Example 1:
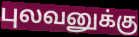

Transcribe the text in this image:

புலவனுக்கு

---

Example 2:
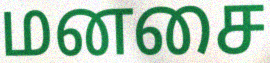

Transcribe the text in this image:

மனசை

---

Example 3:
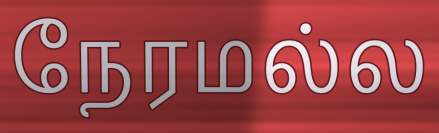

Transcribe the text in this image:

நேரமல்ல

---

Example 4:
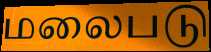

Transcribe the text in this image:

மலைபடு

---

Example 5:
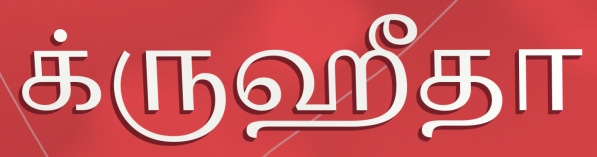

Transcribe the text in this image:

க்ருஹீதா